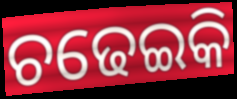
ଚଢେଇକି